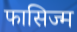
फासिज्म